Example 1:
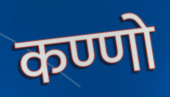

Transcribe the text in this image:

कण्णो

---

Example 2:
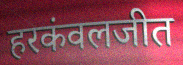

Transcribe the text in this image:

हरकंवलजीत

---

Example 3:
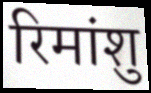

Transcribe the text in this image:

रिमांशु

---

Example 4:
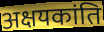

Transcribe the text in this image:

अक्षयकांति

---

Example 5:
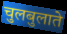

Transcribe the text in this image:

चुलबुलाते